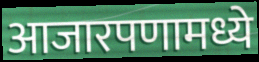
आजारपणामध्ये